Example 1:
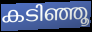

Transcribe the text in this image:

കടിഞ്ഞൂ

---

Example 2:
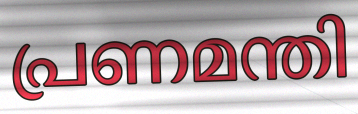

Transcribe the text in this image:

പ്രണമന്തി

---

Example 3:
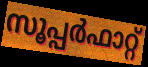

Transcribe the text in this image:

സൂപ്പർഫാറ്റ്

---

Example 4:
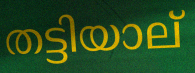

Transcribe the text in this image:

തട്ടിയാല്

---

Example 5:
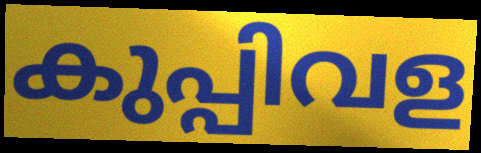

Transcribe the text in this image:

കുപ്പിവള